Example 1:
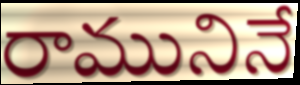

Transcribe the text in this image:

రామునినే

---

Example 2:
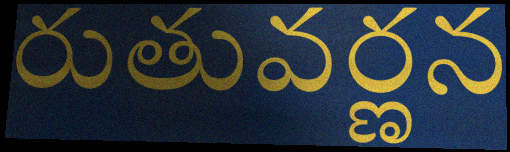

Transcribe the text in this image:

రుతువర్ణన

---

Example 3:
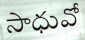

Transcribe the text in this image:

సాధువో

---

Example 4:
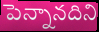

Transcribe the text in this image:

పెన్నానదిని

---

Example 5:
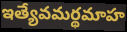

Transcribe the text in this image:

ఇత్యేవమర్థమాహ